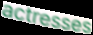
actresses